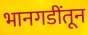
भानगडींतून